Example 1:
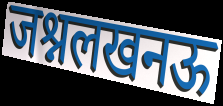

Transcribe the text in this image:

जश्नलखनऊ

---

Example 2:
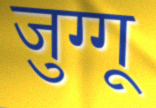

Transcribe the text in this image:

जुग्गू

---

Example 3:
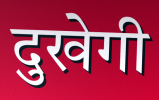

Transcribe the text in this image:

दुखेगी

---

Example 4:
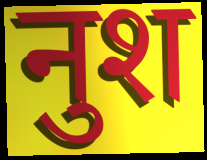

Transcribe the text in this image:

नुश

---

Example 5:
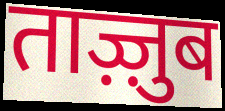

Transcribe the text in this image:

ताज़्ज़ुब